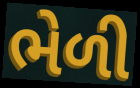
ભેળી